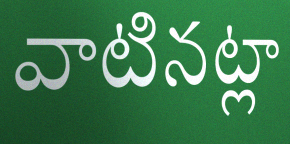
వాటినట్లా